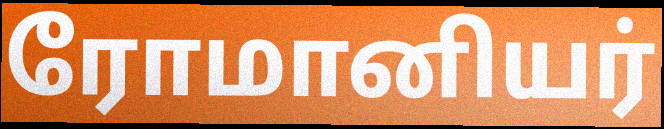
ரோமானியர்